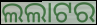
ଲଲାଟର